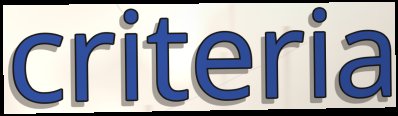
criteria